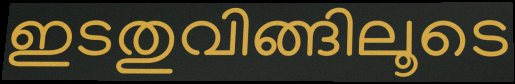
ഇടതുവിങ്ങിലൂടെ